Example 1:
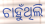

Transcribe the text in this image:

ଚାହୁଁଥିଲି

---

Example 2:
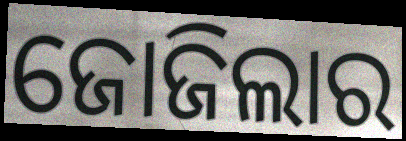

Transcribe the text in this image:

ଜୋଜିଲାର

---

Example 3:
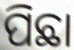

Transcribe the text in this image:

ପିଛା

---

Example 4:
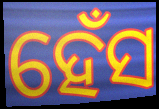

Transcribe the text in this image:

ହେଁସ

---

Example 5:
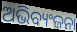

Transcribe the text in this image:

ଅଭିବ୍ୟଂଜନା